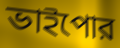
ভাইপোর